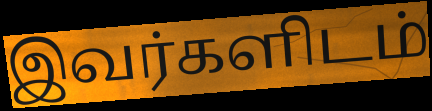
இவர்களிடம்